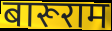
बारूराम